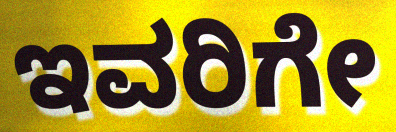
ಇವರಿಗೇ